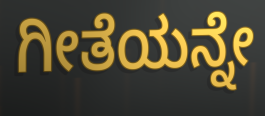
ಗೀತೆಯನ್ನೇ